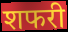
शफरी